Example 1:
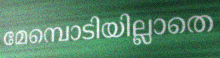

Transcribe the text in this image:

മേമ്പൊടിയില്ലാതെ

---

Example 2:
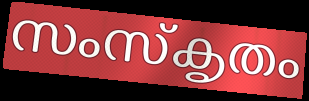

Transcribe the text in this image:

സംസ്‌കൃതം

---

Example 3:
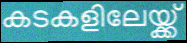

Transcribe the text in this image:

കടകളിലേയ്ക്ക്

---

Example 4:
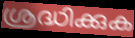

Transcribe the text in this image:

ശ്രദ്ധിക്കുക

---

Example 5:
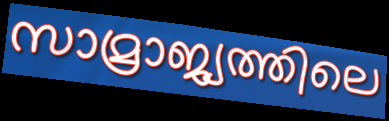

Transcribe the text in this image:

സാമ്രാജ്യത്തിലെ